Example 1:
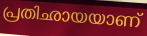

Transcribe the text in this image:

പ്രതിഛായയാണ്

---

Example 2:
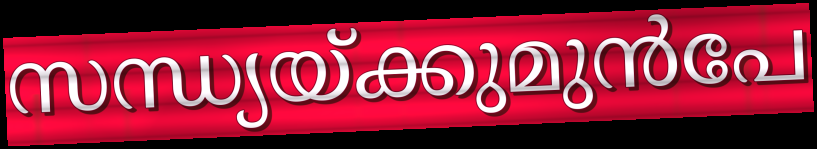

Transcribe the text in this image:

സന്ധ്യയ്ക്കുമുൻപേ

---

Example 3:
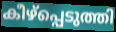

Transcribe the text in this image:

കീഴ്പ്പെടുത്തി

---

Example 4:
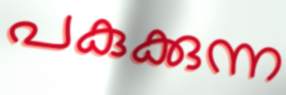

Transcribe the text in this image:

പകുക്കുന്ന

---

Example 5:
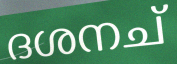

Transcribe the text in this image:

ദശനച്